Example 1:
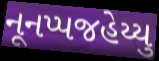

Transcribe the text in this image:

નૂનપ્પજહેય્યુ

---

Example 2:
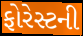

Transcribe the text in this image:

ફોરેસ્ટની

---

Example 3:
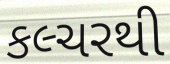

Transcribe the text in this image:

કલ્ચરથી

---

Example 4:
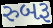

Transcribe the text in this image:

રુબરૂ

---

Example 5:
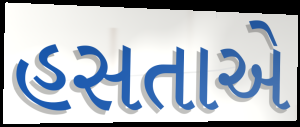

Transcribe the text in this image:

હસતાએ